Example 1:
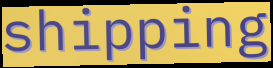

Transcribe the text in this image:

shipping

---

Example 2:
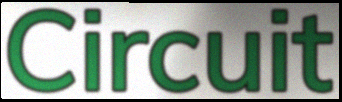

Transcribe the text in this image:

Circuit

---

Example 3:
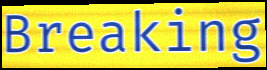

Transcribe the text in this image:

Breaking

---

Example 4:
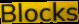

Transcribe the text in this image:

Blocks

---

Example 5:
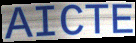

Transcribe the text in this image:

AICTE